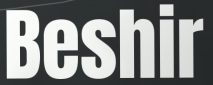
Beshir